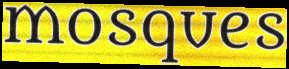
mosques